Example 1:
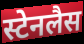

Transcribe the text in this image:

स्टेनलैस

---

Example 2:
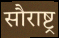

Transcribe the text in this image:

सौराष्ट्र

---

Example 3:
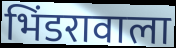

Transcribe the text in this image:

भिंडरावाला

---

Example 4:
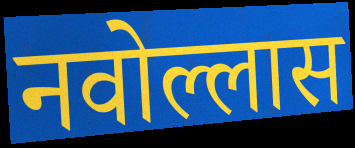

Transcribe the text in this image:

नवोल्लास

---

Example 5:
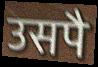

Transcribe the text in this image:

उसपै